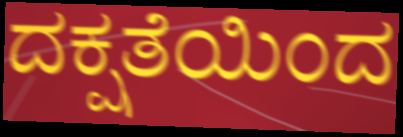
ದಕ್ಷತೆಯಿಂದ